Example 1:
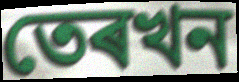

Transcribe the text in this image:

তেৰখন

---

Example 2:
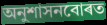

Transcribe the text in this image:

অনুশাসনবোৰত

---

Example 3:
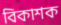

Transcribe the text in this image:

বিকাশক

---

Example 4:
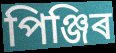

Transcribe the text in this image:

পিঞ্জিৰ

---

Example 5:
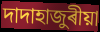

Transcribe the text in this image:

দাদাহাজুৰীয়া